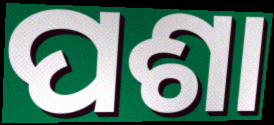
ପଶା